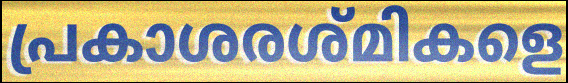
പ്രകാശരശ്മികളെ